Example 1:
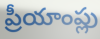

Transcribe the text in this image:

ప్రీయాంప్లు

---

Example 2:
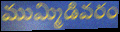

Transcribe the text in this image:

ముమ్మిడివరం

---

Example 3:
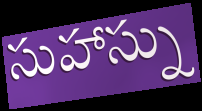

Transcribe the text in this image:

సుహాస్ను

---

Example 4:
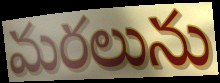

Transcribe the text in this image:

మరలును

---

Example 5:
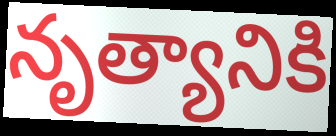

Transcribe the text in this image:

నృత్యానికి